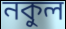
নকুল